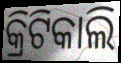
କ୍ରିଟିକାଲି